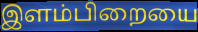
இளம்பிறையை